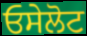
ਓਸੇਲੋਟ